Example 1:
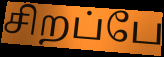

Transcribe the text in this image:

சிறப்பே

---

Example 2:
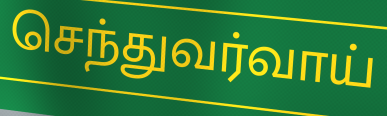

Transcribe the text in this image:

செந்துவர்வாய்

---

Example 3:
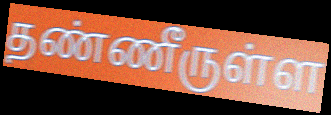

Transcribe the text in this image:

தண்ணீருள்ள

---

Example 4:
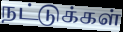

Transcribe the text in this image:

நட்டுக்கள்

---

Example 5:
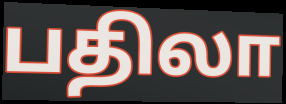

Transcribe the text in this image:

பதிலா